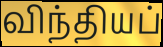
விந்தியப்